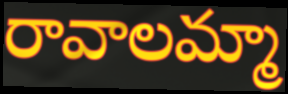
రావాలమ్మా